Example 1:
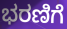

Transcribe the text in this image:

ಭರಣಿಗೆ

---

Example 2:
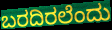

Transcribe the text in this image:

ಬರದಿರಲೆಂದು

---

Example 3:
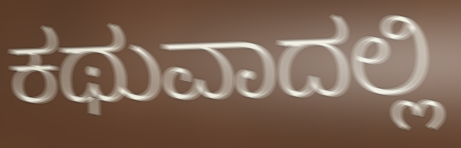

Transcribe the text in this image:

ಕಥುವಾದಲ್ಲಿ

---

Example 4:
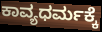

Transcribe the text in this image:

ಕಾವ್ಯಧರ್ಮಕ್ಕೆ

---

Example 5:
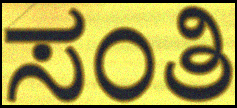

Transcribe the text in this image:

ಸಂತಿ